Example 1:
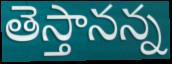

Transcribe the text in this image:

తెస్తానన్న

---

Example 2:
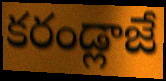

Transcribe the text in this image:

కరండ్లాజే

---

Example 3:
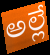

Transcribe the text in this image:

అల్లే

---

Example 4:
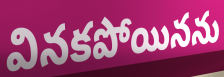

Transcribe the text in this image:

వినకపోయినను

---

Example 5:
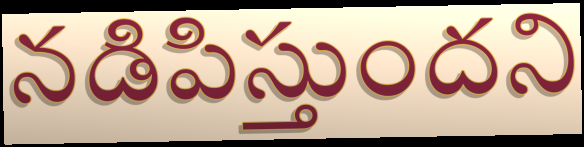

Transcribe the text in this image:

నడిపిస్తుందని